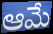
ఆమే